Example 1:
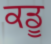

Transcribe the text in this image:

ਕਡੂ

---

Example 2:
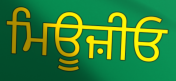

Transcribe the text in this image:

ਮਿਊਜ਼ੀਓ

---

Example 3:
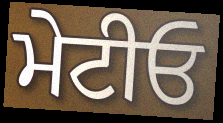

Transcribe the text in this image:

ਮੇਟੀਓ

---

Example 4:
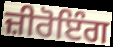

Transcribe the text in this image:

ਜ਼ੀਰੋਇੰਗ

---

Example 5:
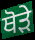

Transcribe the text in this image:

ਥੋਡ਼ੇ